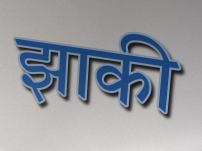
झाकी